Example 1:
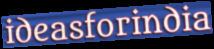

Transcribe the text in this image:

ideasforindia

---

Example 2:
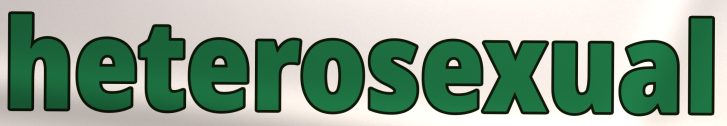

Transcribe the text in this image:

heterosexual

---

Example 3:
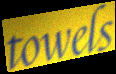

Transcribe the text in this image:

towels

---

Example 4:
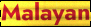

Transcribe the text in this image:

Malayan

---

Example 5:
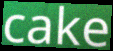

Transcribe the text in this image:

cake